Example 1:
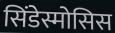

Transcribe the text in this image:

सिंडेस्मोसिस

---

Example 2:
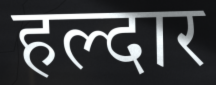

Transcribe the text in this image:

हल्दार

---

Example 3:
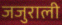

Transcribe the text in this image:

जजुराली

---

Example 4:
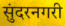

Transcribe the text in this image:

सुंदरनगरी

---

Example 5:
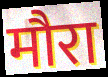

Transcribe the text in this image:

मौरा